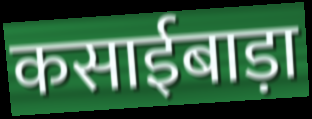
कसाईबाड़ा